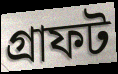
গ্রাফট